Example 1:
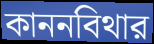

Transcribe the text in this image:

কাননবিথার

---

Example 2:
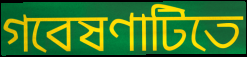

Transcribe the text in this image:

গবেষণাটিতে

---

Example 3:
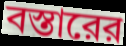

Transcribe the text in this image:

বস্তারের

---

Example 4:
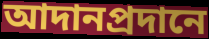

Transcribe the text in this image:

আদানপ্রদানে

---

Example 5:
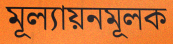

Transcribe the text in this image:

মূল্যায়নমূলক